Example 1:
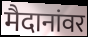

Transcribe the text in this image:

मैदानांवर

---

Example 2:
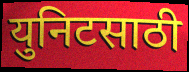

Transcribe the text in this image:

युनिटसाठी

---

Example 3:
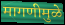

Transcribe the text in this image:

मागणीमुळे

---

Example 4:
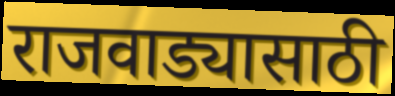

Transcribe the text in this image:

राजवाड्यासाठी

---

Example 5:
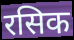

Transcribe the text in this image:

रसिक